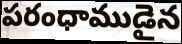
పరంధాముడైన